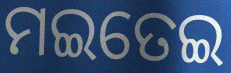
ମଇତେଇ